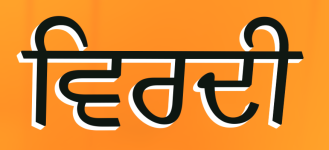
ਵਿਰਦੀ